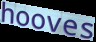
hooves